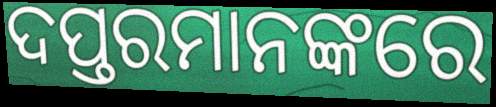
ଦପ୍ତରମାନଙ୍କରେ